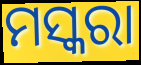
ମସ୍କରା